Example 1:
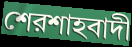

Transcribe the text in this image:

শেরশাহবাদী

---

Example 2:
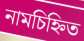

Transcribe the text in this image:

নামচিহ্নিত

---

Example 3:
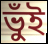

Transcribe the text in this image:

ভুঁই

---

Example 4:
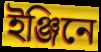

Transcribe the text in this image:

ইঞ্জিনে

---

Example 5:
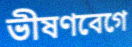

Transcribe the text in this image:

ভীষণবেগে